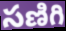
సణిగి